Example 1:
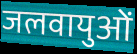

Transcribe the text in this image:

जलवायुओं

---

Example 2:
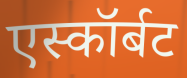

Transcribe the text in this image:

एस्कॉर्बट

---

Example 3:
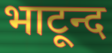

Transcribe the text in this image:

भाटून्द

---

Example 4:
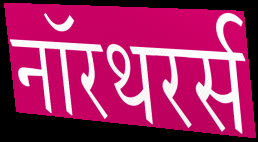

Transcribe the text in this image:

नॉरथरर्स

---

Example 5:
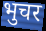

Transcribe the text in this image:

भुचर